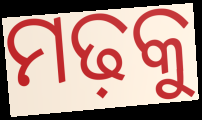
ମଢ଼କୁ